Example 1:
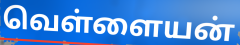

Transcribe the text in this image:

வெள்ளையன்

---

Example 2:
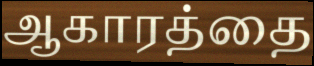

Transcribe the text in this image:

ஆகாரத்தை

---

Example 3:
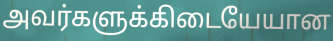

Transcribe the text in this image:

அவர்களுக்கிடையேயான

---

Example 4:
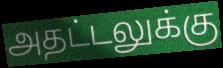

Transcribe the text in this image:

அதட்டலுக்கு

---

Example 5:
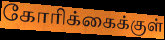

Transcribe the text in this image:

கோரிக்கைக்குள்